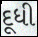
દૂધી